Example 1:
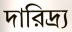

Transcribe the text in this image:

দারিদ্র্য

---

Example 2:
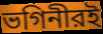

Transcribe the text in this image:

ভগিনীরই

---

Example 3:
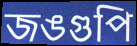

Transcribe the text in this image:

জঙগুপি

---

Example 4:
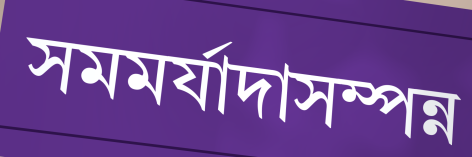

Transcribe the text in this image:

সমমর্যাদাসম্পন্ন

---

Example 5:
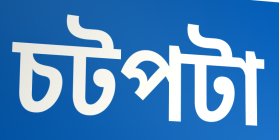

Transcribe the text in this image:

চটপটা